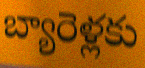
బ్యారెళ్లకు